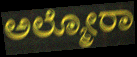
ಅಲ್ಮೋರಾ